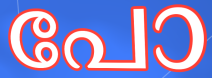
പോ